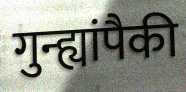
गुन्ह्यांपैकी